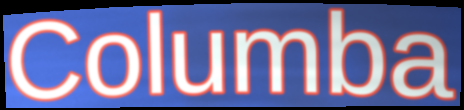
Columba